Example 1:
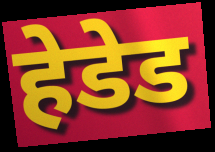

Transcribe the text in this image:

हेडेड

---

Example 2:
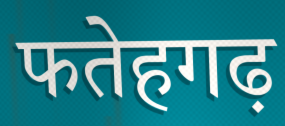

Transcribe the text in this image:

फतेहगढ़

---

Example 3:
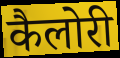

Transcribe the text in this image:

कैलोरी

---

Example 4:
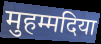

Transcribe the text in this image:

मुहम्मदिया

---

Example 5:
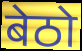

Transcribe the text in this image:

बेठो